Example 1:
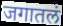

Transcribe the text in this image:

जगातलं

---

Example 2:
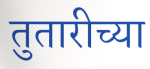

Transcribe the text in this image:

तुतारीच्या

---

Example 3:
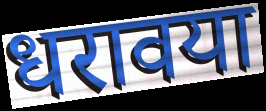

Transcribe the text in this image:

धरावया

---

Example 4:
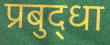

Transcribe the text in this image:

प्रबुद्धा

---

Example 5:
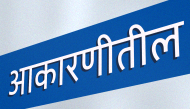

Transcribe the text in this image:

आकारणीतील